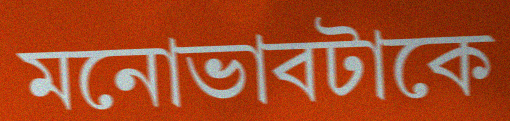
মনোভাবটাকে